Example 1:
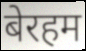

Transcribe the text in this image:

बेरहम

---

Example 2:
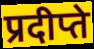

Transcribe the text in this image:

प्रदीप्ते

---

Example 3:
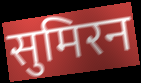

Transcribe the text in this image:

सुमिरन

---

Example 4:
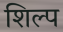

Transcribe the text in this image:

शिल्‍प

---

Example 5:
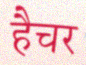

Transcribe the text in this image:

हैचर